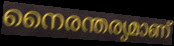
നൈരന്തര്യമാണ്